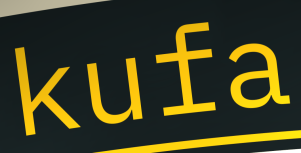
kufa